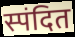
स्पंदित